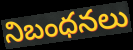
నిబంధనలు